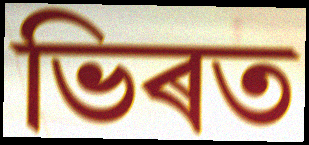
ভিৰত